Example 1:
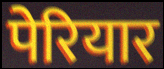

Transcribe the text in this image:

पेरियार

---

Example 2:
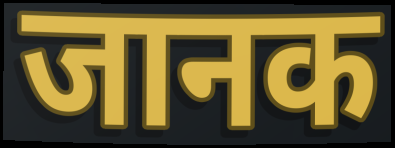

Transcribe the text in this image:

जानक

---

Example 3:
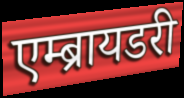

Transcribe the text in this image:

एम्ब्रायडरी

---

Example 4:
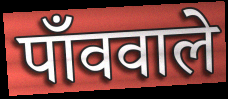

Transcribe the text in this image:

पाँववाले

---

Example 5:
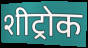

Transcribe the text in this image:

शीट्रोक